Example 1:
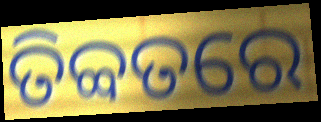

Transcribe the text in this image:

ତିବ୍ବତରେ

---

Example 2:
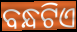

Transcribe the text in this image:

ବନ୍ଧଟିଏ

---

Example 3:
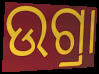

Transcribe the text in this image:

ଉଗ୍ରା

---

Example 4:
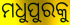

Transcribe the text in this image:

ମଧୁପୁରକୁ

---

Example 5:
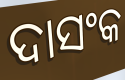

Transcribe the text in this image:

ଦାସଂକ